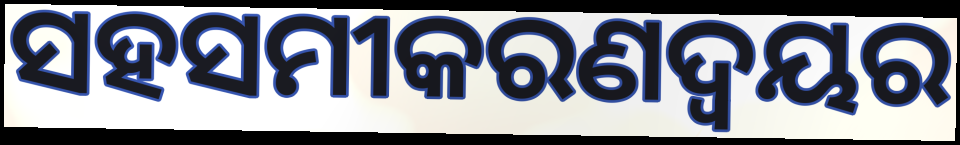
ସହସମୀକରଣଦ୍ୱୟର